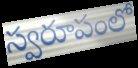
స్వరూపంలో